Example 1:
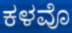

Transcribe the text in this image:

ಕಳವೊ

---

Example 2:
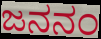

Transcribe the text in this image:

ಜನನಂ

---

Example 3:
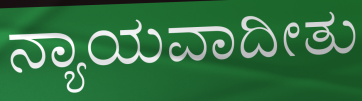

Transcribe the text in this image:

ನ್ಯಾಯವಾದೀತು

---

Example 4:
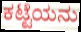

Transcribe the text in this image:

ಕಟ್ಟೆಯನು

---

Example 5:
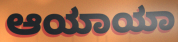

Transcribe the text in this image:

ಆಯಾಯಾ